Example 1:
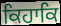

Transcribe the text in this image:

ਕਿਹਾਕਿ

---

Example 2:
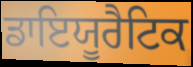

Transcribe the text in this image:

ਡਾਇਯੂਰੈਟਿਕ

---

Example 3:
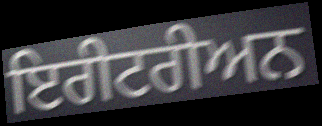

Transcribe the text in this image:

ਇਰੀਟਰੀਅਨ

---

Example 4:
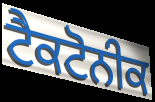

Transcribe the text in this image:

ਟੈਕਟੋਨੀਕ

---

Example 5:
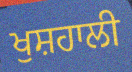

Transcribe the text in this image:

ਖੁਸ਼ਹਾਲੀ